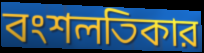
বংশলতিকার